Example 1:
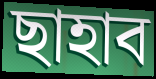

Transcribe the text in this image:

ছাহাব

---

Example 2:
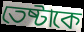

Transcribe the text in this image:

তেষ্টাকে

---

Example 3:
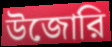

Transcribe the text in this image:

উজোরি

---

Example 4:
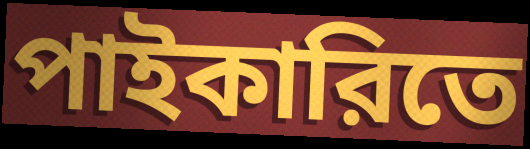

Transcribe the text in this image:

পাইকারিতে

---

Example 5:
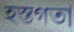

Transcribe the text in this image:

হস্তগতা